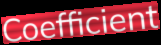
Coefficient